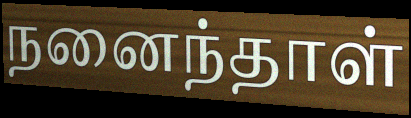
நனைந்தாள்